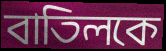
বাতিলকে